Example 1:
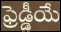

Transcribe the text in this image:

ఫ్రెడ్డీయే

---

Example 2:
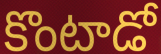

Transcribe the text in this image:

కొంటాడో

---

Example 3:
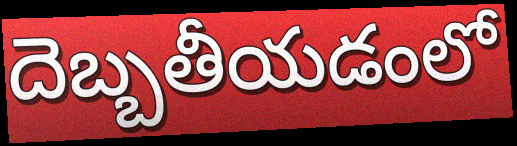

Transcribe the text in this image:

దెబ్బతీయడంలో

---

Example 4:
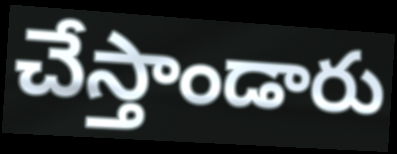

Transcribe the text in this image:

చేస్తాండారు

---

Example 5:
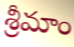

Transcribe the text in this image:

శ్రీమాం